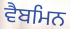
ਵੈਬਮਿਨ